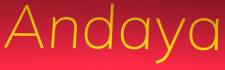
Andaya